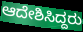
ಆದೇಶಿಸಿದ್ದರು